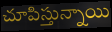
చూపిస్తున్నాయి